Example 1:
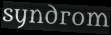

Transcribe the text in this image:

syndrom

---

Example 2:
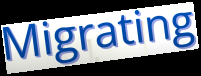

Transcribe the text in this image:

Migrating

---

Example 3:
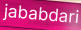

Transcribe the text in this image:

jababdari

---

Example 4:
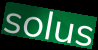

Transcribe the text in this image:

solus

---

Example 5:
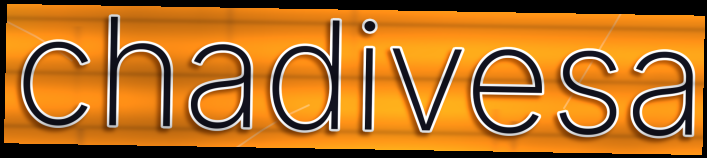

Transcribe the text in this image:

chadivesa